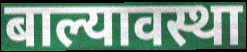
बाल्यावस्था